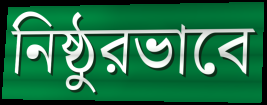
নিষ্ঠুরভাবে